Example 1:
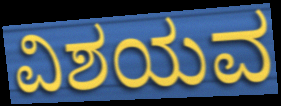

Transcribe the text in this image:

ವಿಶಯವ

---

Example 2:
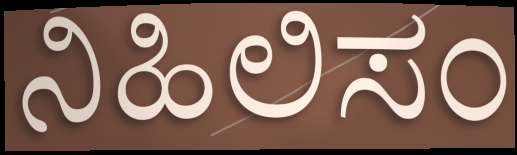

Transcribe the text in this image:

ನಿಹಿಲಿಸಂ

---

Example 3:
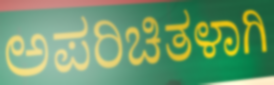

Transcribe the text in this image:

ಅಪರಿಚಿತಳಾಗಿ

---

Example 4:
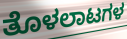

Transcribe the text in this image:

ತೊಳಲಾಟಗಳ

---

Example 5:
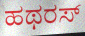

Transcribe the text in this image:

ಹಥರಸ್